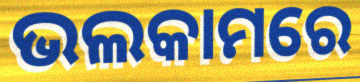
ଭଲକାମରେ